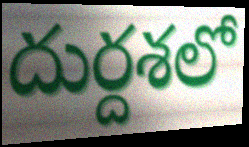
దుర్దశలో